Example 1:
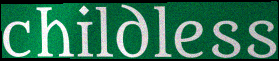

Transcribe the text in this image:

childless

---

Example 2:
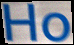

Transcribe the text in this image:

Ho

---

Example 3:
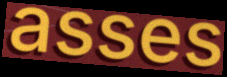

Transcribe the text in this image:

asses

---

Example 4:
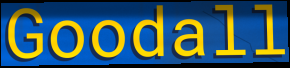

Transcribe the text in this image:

Goodall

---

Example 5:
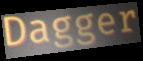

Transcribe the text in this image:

Dagger